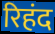
रिहंद